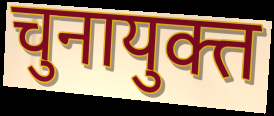
चुनायुक्त